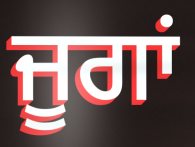
ਜੂਗਾਂ